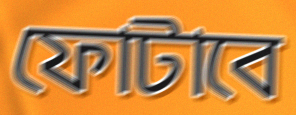
ফোটাবে